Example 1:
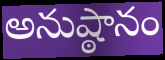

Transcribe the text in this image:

అనుష్ఠానం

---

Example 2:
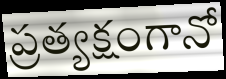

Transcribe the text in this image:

ప్రత్యక్షంగానో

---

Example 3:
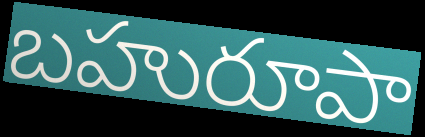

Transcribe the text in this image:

బహురూపా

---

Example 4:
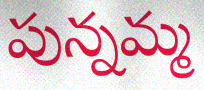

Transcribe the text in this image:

పున్నమ్మ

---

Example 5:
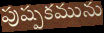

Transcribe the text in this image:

పుష్పకమును